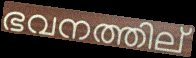
ഭവനത്തില്